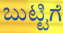
ಬುಟ್ಟಿಗೆ